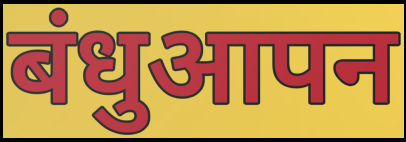
बंधुआपन